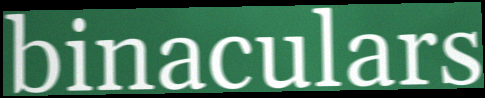
binaculars